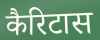
कैरिटास